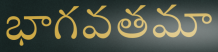
భాగవతమా